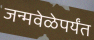
जन्मवेळेपर्यंत